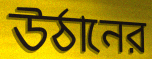
উঠানের